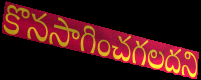
కొనసాగించగలదని